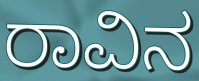
ರಾವಿನ